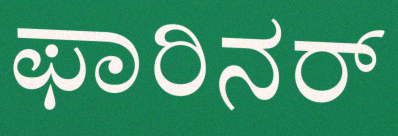
ಫಾರಿನರ್